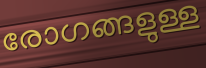
രോഗങ്ങളുള്ള